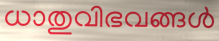
ധാതുവിഭവങ്ങൾ